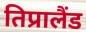
तिप्रालैंड